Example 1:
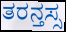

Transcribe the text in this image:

ತರನ್ತಸ್ಸ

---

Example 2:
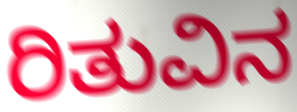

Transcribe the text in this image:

ರಿತುವಿನ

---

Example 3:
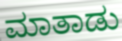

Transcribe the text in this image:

ಮಾತಾಡು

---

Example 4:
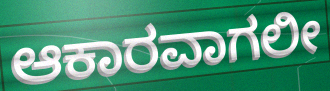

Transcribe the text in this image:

ಆಕಾರವಾಗಲೀ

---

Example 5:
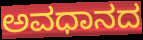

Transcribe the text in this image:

ಅವಧಾನದ